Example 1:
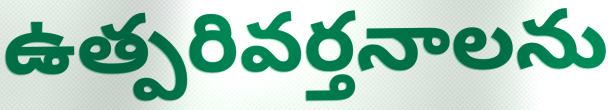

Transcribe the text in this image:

ఉత్పరివర్తనాలను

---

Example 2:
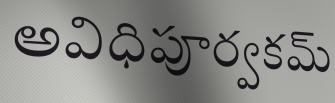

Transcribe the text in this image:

అవిధిపూర్వకమ్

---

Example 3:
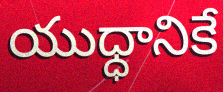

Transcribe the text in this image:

యుధ్ధానికే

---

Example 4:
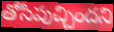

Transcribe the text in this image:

తోసిపుచ్చిందని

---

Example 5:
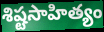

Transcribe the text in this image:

శిష్టసాహిత్యం